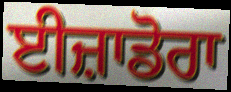
ਈਜ਼ਾਡੋਰਾ